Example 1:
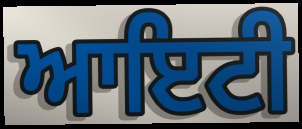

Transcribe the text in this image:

ਆਇਟੀ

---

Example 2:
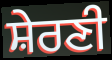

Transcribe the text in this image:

ਸ਼ੇਰਣੀ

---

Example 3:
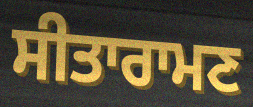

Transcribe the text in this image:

ਸੀਤਾਰਾਮਣ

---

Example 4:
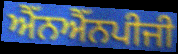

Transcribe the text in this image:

ਐੱਨਐੱਨਪੀਜੀ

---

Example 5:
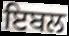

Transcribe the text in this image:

ਇਬਲ